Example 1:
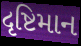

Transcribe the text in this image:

દૃષ્ટિમાન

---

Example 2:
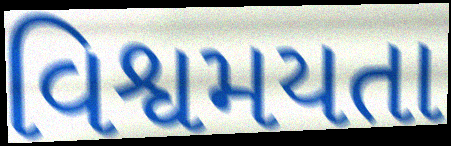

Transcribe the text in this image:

વિશ્વમયતા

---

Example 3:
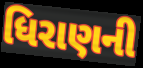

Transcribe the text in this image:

ધિરાણની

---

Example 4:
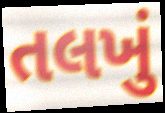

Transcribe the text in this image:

તલખું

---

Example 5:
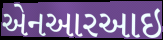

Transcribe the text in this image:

એનઆરઆઇ